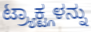
ಟ್ರ್ಯಾಕ್ಟ್ಗಳನ್ನು